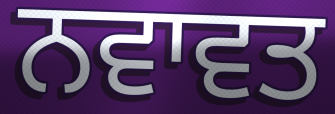
ਨਵਾਵਤ